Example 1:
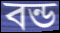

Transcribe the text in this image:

বন্ড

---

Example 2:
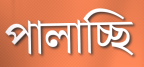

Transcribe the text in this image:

পালাচ্ছি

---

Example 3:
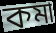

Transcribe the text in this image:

কমা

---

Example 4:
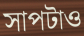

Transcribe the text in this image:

সাপটাও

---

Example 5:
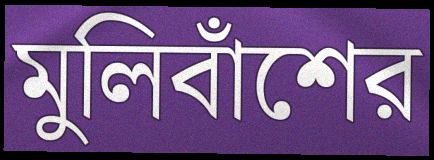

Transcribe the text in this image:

মুলিবাঁশের